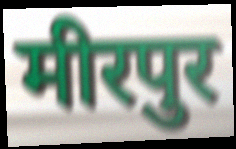
मीरपुर